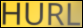
HURL